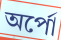
অর্পো